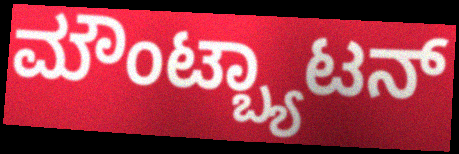
ಮೌಂಟ್ಬ್ಯಾಟನ್